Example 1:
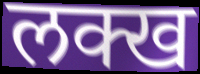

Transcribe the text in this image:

लक्ख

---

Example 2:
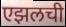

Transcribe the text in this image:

एझलची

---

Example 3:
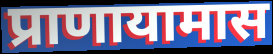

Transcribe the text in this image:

प्राणायामास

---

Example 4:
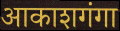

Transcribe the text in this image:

आकाशगंगा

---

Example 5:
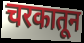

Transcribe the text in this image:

चरकातून